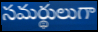
సమర్థులుగా